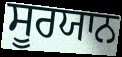
ਸੂਰਯਾਨ